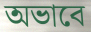
অভাবে